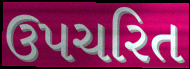
ઉપચરિત